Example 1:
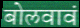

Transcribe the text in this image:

बोलवावं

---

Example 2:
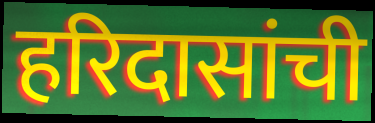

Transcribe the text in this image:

हरिदासांची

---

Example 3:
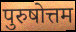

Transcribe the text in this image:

पुरुषोत्तम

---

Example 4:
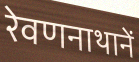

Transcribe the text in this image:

रेवणनाथानें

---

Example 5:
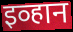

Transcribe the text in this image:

इव्हान